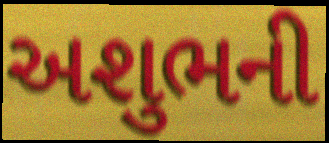
અશુભની